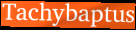
Tachybaptus